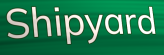
Shipyard